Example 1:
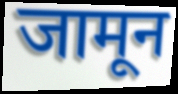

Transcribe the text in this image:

जामून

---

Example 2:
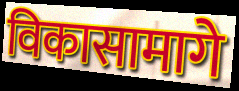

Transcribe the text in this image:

विकासामागे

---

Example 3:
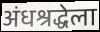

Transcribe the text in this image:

अंधश्रद्धेला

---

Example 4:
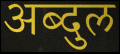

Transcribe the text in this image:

अब्दुल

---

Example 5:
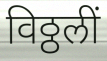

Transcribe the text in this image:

विठ्ठलीं